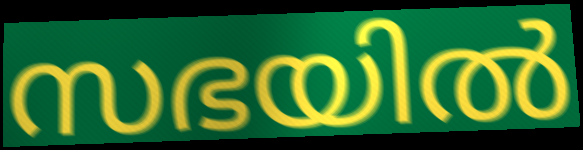
സഭയിൽ